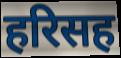
हरिसह